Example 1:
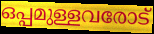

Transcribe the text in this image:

ഒപ്പമുള്ളവരോട്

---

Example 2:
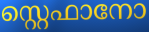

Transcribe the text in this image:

സ്റ്റെഫാനോ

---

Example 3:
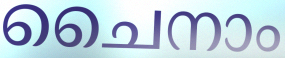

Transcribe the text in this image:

ചൈനാം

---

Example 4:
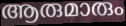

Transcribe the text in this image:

ആരുമാരും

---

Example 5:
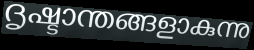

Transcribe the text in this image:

ദൃഷ്ടാന്തങ്ങളാകുന്നു